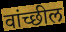
वांच्छील